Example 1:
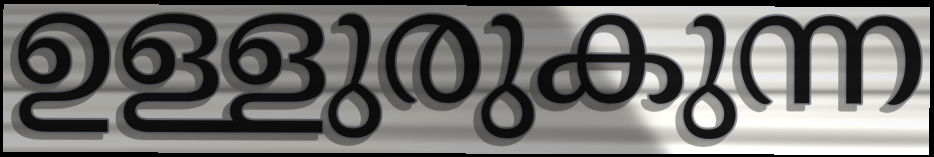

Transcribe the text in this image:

ഉള്ളുരുകുന്ന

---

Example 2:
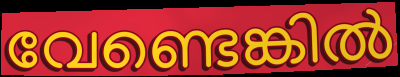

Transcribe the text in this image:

വേണ്ടെങ്കിൽ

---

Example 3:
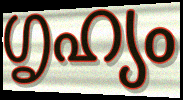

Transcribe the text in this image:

ഗൃഹ്യം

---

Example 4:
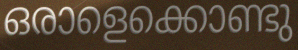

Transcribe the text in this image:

ഒരാളെക്കൊണ്ടു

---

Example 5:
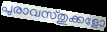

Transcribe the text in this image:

പുരാവസ്തുക്കളോ